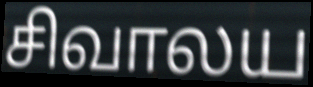
சிவாலய